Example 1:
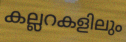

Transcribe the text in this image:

കല്ലറകളിലും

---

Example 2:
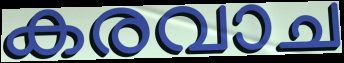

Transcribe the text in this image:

കരവാച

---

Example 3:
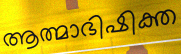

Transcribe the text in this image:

ആത്മാഭിഷിക്ത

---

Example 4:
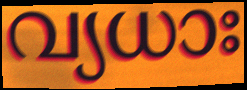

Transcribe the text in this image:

വ്യധാഃ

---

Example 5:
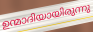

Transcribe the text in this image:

ഉന്മാദിയായിരുന്നു